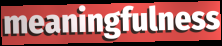
meaningfulness